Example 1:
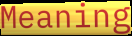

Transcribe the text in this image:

Meaning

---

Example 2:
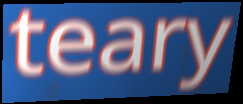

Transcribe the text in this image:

teary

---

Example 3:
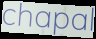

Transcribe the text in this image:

chapal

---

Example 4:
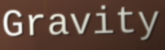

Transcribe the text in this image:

Gravity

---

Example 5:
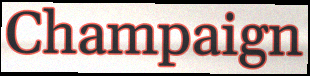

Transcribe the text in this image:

Champaign